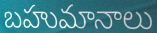
బహుమానాలు